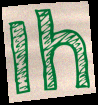
Ih